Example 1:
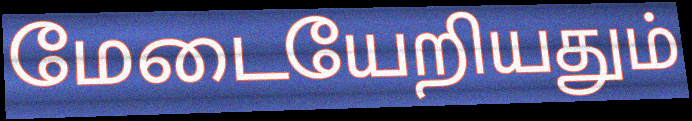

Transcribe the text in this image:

மேடையேறியதும்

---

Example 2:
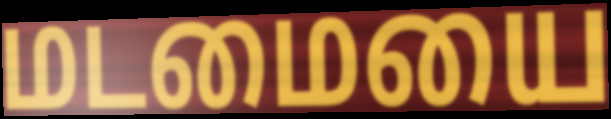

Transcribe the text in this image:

மடமையை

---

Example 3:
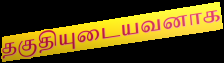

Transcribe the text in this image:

தகுதியுடையவனாக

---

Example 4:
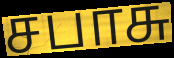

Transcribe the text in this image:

சபாசு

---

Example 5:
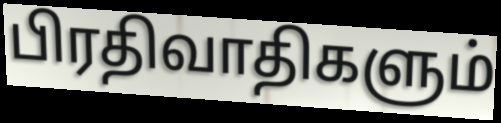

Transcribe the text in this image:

பிரதிவாதிகளும்